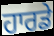
ਹਾਰਡੇ